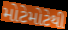
મોટેમોટેથી